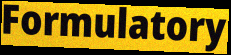
Formulatory